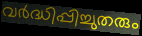
വർദ്ധിപ്പിച്ചുതരും